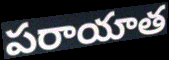
పరాయాత